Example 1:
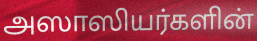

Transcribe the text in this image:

அஸாஸியர்களின்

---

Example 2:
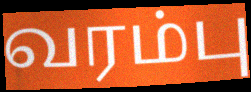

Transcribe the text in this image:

வரம்பு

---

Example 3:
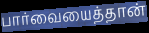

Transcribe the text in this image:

பார்வையைத்தான்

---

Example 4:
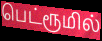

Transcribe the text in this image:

பெட்ரூமில்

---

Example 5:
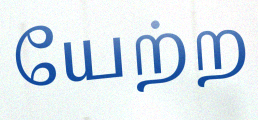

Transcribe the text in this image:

யேற்ற